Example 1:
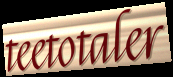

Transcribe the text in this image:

teetotaler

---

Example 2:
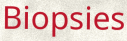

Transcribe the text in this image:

Biopsies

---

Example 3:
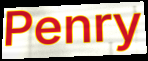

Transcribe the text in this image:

Penry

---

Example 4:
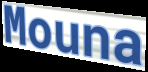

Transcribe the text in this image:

Mouna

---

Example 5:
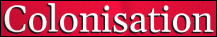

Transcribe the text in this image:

Colonisation